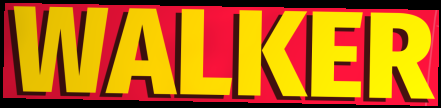
WALKER